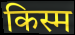
किस्म